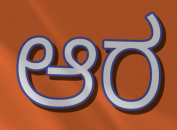
ಆರ